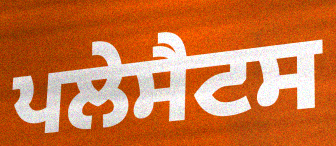
ਪਲੇਸੈਟਸ